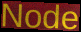
Node